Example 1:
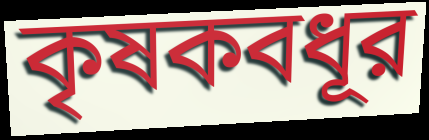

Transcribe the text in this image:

কৃষকবধূর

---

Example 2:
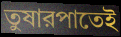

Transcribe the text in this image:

তুষারপাতেই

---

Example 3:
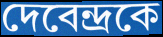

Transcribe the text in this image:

দেবেন্দ্রকে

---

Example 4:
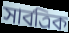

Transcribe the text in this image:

সার্বত্রিক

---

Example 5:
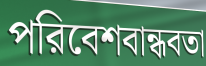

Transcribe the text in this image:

পরিবেশবান্ধবতা